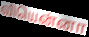
வியென்னா